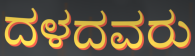
ದಳದವರು